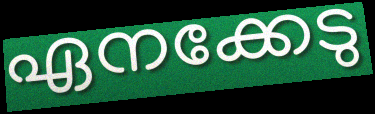
ഏനക്കേടു